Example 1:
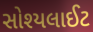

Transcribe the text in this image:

સોશ્યલાઈટ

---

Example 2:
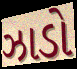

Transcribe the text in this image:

ઝાડો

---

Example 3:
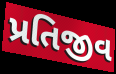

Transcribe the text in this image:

પ્રતિજીવ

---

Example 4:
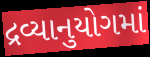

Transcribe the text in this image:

દ્રવ્યાનુયોગમાં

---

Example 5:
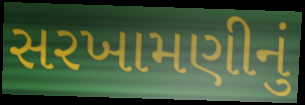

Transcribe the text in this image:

સરખામણીનું